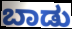
ಬಾಡು